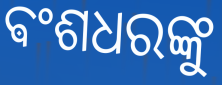
ଵଂଶଧରଙ୍କୁ